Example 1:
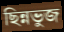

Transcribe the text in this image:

ছিন্নভুজ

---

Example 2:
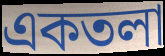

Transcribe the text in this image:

একতলা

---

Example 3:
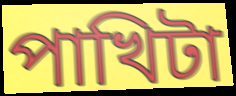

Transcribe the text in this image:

পাখিটা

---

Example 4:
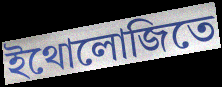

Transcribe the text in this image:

ইথোলোজিতে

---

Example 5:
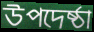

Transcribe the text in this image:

উপদেষ্ঠা